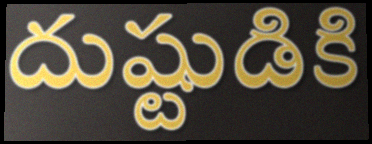
దుష్టుడికి